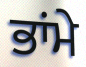
ਭਾਂਮੇ